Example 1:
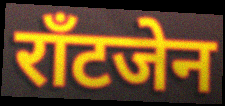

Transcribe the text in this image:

राँटजेन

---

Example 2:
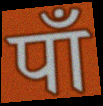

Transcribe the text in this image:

पाँ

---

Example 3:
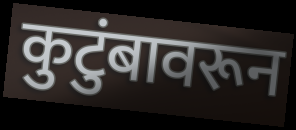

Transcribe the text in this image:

कुटुंबावरून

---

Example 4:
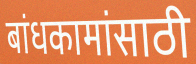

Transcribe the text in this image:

बांधकामांसाठी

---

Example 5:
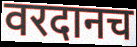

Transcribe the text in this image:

वरदानच